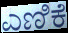
ಎಣಿಕೆ